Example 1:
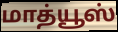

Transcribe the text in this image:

மாத்யூஸ்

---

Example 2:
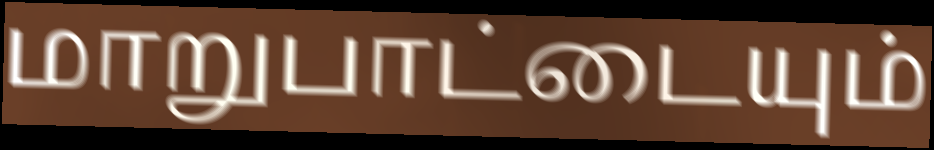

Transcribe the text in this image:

மாறுபாட்டையும்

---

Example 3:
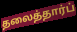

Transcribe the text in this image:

தலைத்தார்ப்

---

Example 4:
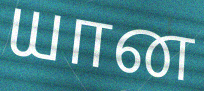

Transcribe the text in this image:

யான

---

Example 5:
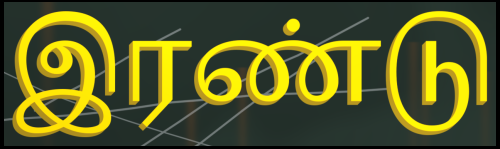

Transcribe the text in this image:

இரண்டு